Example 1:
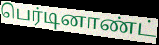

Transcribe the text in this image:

பெர்டினாண்ட்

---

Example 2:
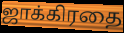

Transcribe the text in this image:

ஜாக்கிரதை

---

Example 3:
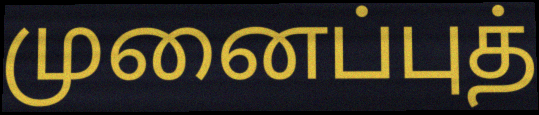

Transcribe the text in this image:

முனைப்புத்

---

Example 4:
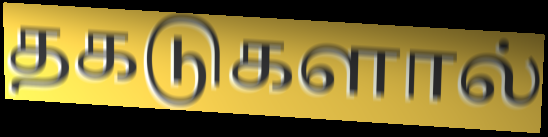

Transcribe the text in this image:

தகடுகளால்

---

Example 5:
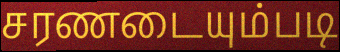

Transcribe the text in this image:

சரணடையும்படி